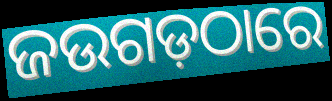
ଜଉଗଡ଼ଠାରେ